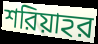
শরিয়াহর